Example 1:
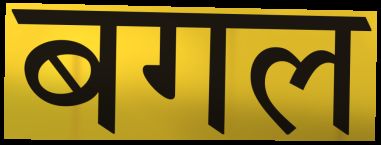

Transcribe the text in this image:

बगल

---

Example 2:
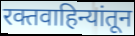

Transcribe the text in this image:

रक्तवाहिन्यांतून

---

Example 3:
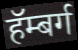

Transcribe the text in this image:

हॅम्बर्ग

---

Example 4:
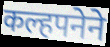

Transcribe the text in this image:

कल्हपनेने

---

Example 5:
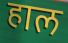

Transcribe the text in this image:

हाल